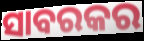
ସାବରକର